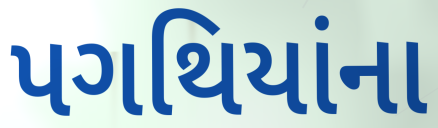
પગથિયાંના